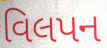
વિલપન